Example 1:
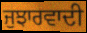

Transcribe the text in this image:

ਜੁਝਾਰਵਾਦੀ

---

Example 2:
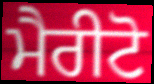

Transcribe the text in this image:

ਮੈਰੀਟੋ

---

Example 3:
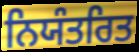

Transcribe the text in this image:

ਨਿਯੰਤਰਿਤ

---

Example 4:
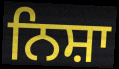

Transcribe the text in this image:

ਨਿਸ਼ਾ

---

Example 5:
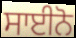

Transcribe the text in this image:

ਸਾਈਨੋ